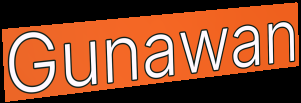
Gunawan